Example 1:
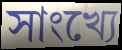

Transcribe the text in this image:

সাংখ্যে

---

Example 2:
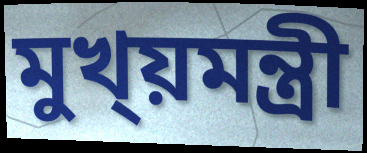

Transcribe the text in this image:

মুখ্য়মন্ত্রী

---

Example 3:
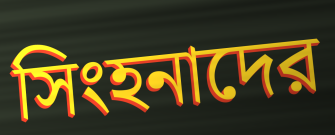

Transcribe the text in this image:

সিংহনাদের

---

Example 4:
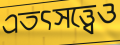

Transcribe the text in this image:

এতৎসত্ত্বেও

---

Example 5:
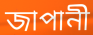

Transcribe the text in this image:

জাপানী